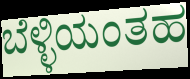
ಬೆಳ್ಳಿಯಂತಹ